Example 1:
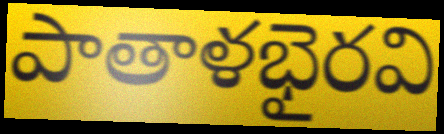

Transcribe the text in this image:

పాతాళభైరవి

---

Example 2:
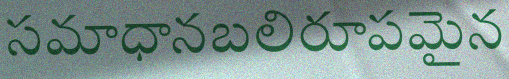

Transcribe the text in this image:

సమాధానబలిరూపమైన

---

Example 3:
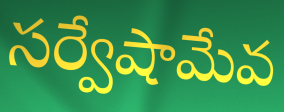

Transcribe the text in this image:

సర్వేషామేవ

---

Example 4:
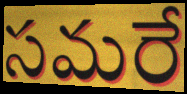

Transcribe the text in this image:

సమరే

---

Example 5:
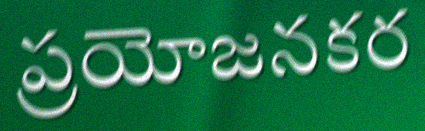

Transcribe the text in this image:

ప్రయోజనకర